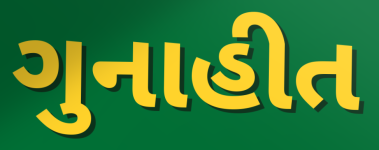
ગુનાહીત